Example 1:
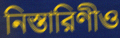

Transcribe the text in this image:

নিস্তারিণীও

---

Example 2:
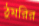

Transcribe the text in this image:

ঠুমরির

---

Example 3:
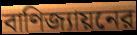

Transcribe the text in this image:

বাণিজ্যায়নের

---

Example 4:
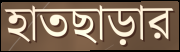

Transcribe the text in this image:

হাতছাড়ার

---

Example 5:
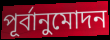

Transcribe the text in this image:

পূর্বানুমোদন